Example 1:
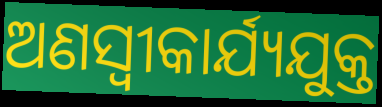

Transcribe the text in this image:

ଅଣସ୍ବୀକାର୍ଯ୍ୟଯୁକ୍ତ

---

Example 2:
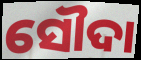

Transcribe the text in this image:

ସୌଦା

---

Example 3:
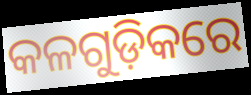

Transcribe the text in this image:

କଳଗୁଡ଼ିକରେ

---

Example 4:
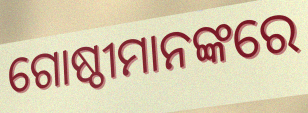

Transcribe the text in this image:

ଗୋଷ୍ଠୀମାନଙ୍କରେ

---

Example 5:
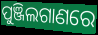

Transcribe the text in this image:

ପୁଞ୍ଜିଲଗାଣରେ